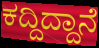
ಕದ್ದಿದ್ದಾನೆ